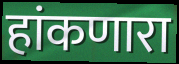
हांकणारा